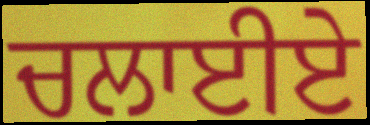
ਚਲਾਈਏ